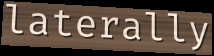
laterally